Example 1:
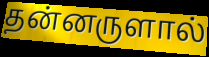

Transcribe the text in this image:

தன்னருளால்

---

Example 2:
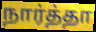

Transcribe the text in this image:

நார்த்தா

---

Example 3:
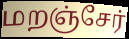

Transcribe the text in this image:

மறஞ்சேர்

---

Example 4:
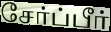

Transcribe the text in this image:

சேர்ப்பீர்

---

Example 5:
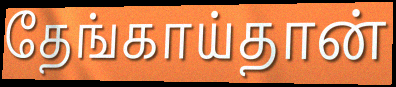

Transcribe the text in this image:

தேங்காய்தான்